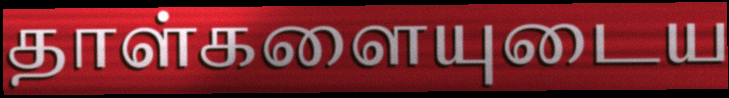
தாள்களையுடைய